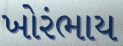
ખોરંભાય